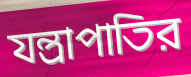
যন্ত্রাপাতির